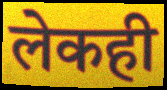
लेकही